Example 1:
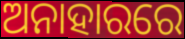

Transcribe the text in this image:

ଅନାହାରରେ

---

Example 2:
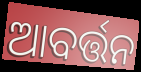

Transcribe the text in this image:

ଆବର୍ତ୍ତନ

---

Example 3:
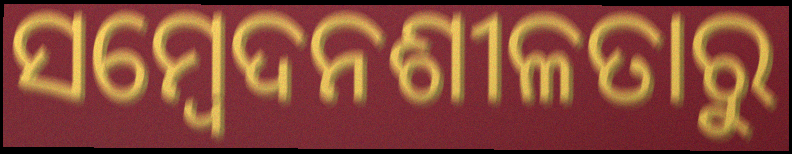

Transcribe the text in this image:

ସମ୍ବେଦନଶୀଳତାରୁ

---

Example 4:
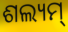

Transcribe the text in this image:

ଶଲ୍ୟମ୍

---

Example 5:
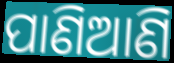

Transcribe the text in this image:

ପାଣିଆଣି